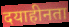
दयाहीनता